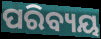
ପରିବ୍ୟୟ